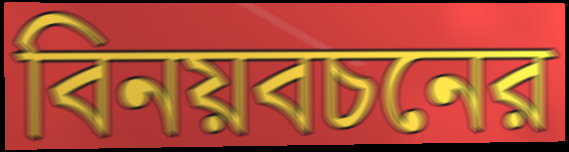
বিনয়বচনের